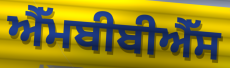
ਐੱਮਬੀਬੀਐੱਸ